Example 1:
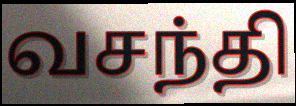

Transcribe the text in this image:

வசந்தி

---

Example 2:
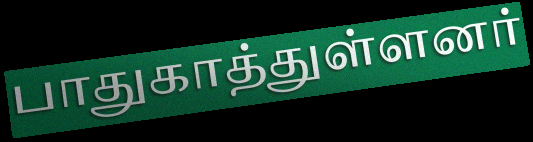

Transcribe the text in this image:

பாதுகாத்துள்ளனர்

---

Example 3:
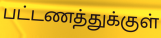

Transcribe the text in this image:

பட்டணத்துக்குள்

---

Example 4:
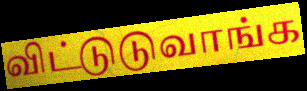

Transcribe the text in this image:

விட்டுடுவாங்க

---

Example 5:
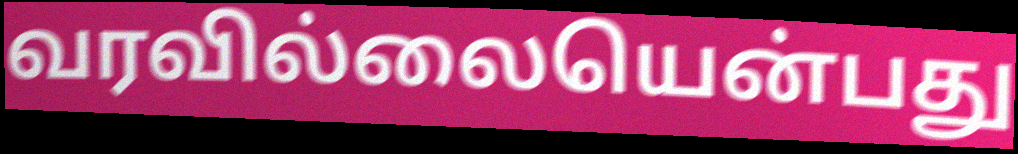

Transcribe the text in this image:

வரவில்லையென்பது